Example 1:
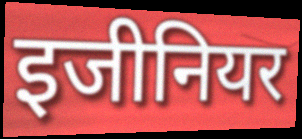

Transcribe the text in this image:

इजीनियर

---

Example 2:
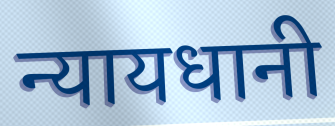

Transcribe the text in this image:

न्यायधानी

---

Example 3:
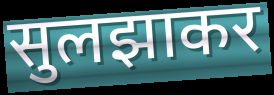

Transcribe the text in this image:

सुलझाकर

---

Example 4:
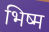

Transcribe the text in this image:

भिष्म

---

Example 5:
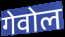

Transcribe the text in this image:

गेवोल